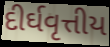
દીર્ઘવૃત્તીય